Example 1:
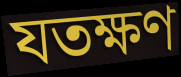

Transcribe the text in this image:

যতক্ষণ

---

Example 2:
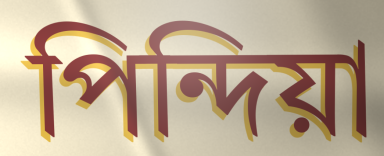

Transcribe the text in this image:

পিন্দিয়া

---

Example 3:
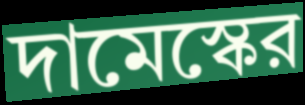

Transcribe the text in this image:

দামেস্কের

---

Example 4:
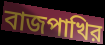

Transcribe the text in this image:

বাজপাখির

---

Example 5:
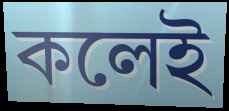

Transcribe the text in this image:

কলেই